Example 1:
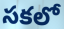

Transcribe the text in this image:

సకలో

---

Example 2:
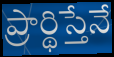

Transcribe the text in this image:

ప్రార్థిస్తేనే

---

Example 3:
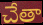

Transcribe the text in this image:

చేతా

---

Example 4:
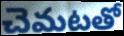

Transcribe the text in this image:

చెమటతో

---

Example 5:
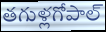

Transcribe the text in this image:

తగుళ్లగోపాల్